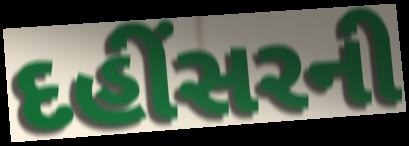
દહીંસરની